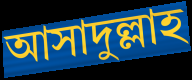
আসাদুল্লাহ